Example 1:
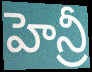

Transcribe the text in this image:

హెన్రీ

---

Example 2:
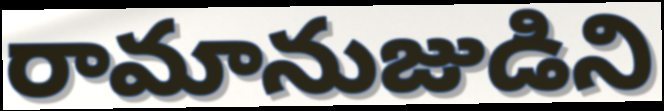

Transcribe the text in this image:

రామానుజుడిని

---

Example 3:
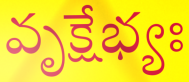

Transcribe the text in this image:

వృక్షేభ్యః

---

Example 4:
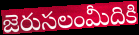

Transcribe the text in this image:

జెరుసలంమీదికి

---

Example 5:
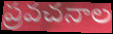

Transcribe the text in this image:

ప్రవచనాల